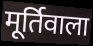
मूर्तिवाला